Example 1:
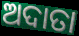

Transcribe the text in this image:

ଅଦାତା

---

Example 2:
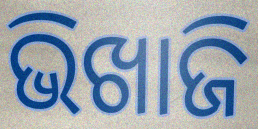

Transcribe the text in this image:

ଭିଖାଜି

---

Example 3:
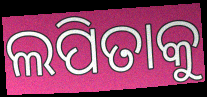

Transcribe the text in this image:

ଲପିତାକୁ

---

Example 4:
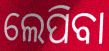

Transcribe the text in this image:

ଲେପିବା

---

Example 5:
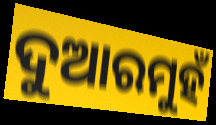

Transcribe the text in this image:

ଦୁଆରମୁହଁ